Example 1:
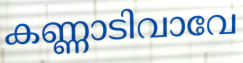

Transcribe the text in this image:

കണ്ണാടിവാവേ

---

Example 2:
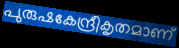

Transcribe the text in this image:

പുരുഷകേന്ദ്രീകൃതമാണ്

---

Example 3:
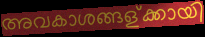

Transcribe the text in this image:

അവകാശങ്ങള്ക്കായി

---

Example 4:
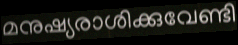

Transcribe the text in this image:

മനുഷ്യരാശിക്കുവേണ്ടി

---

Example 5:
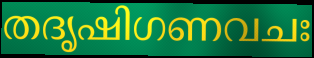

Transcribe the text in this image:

തദൃഷിഗണവചഃ